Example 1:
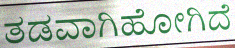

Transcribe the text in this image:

ತಡವಾಗಿಹೋಗಿದೆ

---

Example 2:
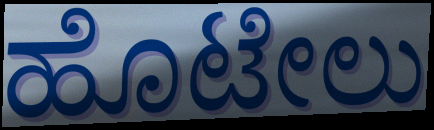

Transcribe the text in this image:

ಹೊಟೇಲು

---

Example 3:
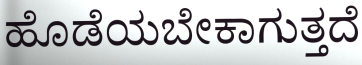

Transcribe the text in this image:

ಹೊಡೆಯಬೇಕಾಗುತ್ತದೆ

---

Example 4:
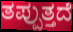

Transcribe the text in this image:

ತಪ್ಪುತ್ತದೆ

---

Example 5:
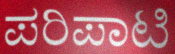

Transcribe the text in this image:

ಪರಿಪಾಟಿ